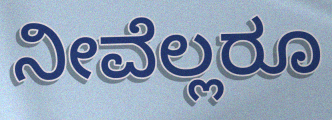
ನೀವೆಲ್ಲರೂ